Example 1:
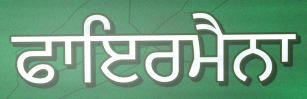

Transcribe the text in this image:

ਫਾਇਰਮੈਨਾ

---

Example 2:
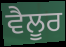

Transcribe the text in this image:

ਵੈਲੂਰ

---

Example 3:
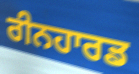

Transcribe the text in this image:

ਰੀਨਹਾਰਡ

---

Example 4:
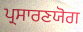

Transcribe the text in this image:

ਪ੍ਰਸਾਰਣਯੋਗ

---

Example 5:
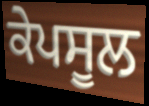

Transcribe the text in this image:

ਕੇਪਸੂਲ